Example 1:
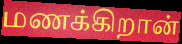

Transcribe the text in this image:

மணக்கிறான்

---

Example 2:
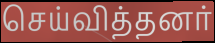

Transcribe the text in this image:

செய்வித்தனர்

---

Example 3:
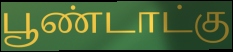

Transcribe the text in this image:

பூண்டாட்கு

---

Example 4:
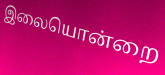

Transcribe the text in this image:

இலையொன்றை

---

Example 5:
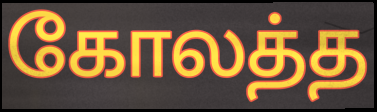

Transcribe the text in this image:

கோலத்த